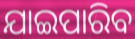
ଯାଇପାରିବ